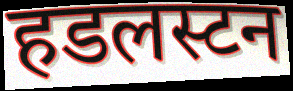
हडलस्टन